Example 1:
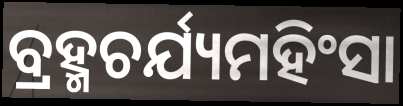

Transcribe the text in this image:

ବ୍ରହ୍ମଚର୍ଯ୍ୟମହିଂସା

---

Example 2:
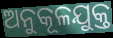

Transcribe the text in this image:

ଅନୁକୂଳଯୁକ୍ତ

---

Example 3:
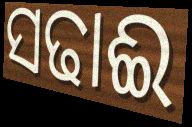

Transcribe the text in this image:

ସଢାଈ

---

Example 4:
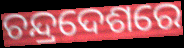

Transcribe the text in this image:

ଚନ୍ଦ୍ରଦେଶରେ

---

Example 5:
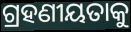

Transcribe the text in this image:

ଗ୍ରହଣୀୟତାକୁ